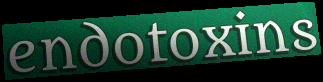
endotoxins